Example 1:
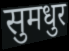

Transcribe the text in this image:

सुमधुर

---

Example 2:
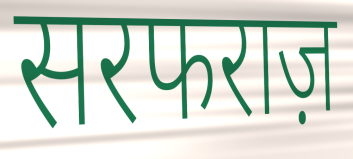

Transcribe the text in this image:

सरफराज़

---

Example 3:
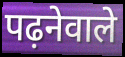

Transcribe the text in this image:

पढ़नेवाले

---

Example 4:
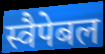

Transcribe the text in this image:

स्वैपेबल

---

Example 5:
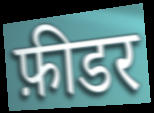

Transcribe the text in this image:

फ़ीडर